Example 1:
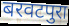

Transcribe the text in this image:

बरवटपुरा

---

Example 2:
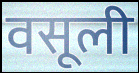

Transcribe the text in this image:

वसूली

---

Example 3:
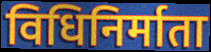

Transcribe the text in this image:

विधिनिर्माता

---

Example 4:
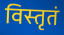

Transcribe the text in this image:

विस्तृतं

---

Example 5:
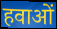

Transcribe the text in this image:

हवाओं